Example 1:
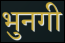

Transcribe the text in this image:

भुनगी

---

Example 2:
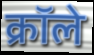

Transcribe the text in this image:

क्रॉले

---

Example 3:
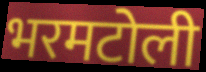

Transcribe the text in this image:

भरमटोली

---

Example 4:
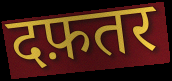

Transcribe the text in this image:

दफ़तर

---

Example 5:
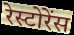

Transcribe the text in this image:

रेस्टोरेंस